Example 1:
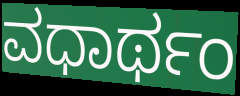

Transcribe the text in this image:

ವಧಾರ್ಥಂ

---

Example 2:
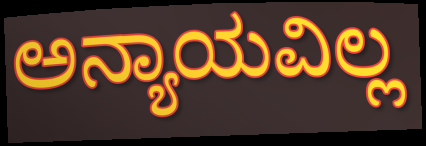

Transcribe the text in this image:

ಅನ್ಯಾಯವಿಲ್ಲ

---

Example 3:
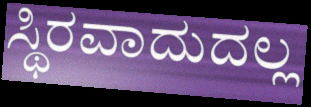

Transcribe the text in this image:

ಸ್ಥಿರವಾದುದಲ್ಲ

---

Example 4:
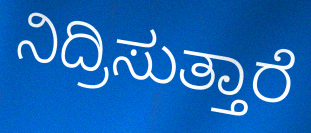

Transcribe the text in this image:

ನಿದ್ರಿಸುತ್ತಾರೆ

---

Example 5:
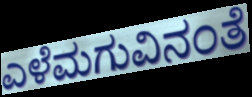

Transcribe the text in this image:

ಎಳೆಮಗುವಿನಂತೆ